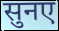
सुनए